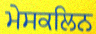
ਮੇਸਕਲਿਨ